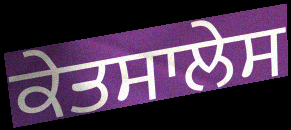
ਕੇਤਸਾਲੇਸ